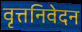
वृत्तनिवेदन